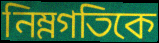
নিম্নগতিকে